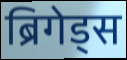
ब्रिगेड्स